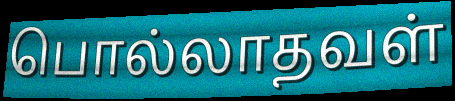
பொல்லாதவள்